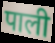
पाली